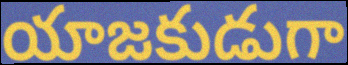
యాజకుడుగా